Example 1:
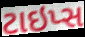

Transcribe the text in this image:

ટાઇપ્સ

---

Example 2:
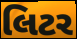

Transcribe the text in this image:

લિટર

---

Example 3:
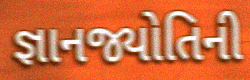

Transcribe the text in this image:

જ્ઞાનજ્યોતિની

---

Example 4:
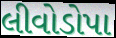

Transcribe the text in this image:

લીવોડોપા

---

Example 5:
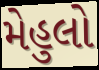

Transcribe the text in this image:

મેહુલો